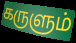
கருளும்